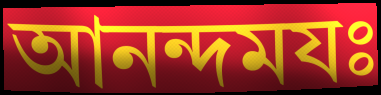
আনন্দমযঃ